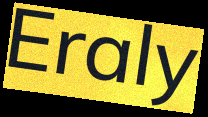
Eraly